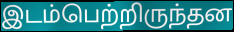
இடம்பெற்றிருந்தன